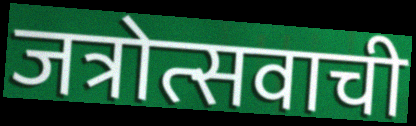
जत्रोत्सवाची